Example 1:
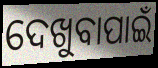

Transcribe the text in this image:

ଦେଖୁବାପାଇଁ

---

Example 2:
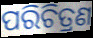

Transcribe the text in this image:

ପରିଚିତ୍ରଣ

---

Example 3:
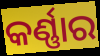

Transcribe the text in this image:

କର୍ଣ୍ଣାର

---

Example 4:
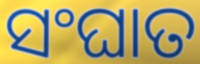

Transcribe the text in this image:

ସଂଘାତ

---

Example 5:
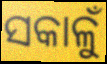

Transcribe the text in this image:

ସକାଳୁଁ